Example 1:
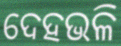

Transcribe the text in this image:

ଦେହଭଳି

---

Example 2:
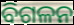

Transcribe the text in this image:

ବିଗଳନ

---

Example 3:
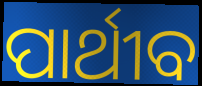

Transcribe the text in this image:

ପାର୍ଥୀବ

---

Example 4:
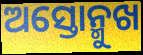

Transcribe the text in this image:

ଅସ୍ତୋନ୍ମୁଖ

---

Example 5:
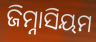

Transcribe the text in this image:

ଜିମ୍ନାସିୟମ